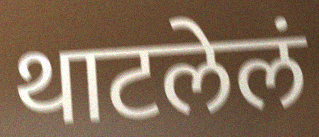
थाटलेलं